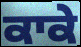
ਕਾਕੇ